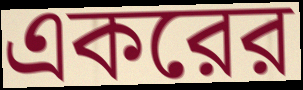
একরের